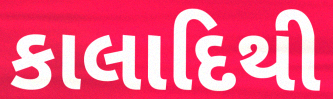
કાલાદિથી